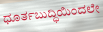
ಧೂರ್ತಬುದ್ಧಿಯಿಂದಲೇ